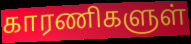
காரணிகளுள்